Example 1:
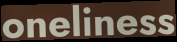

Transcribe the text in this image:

oneliness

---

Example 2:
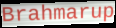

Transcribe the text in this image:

Brahmarup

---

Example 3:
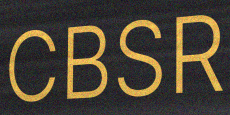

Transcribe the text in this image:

CBSR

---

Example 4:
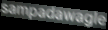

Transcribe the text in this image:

sampadawagle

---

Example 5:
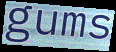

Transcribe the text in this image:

gums